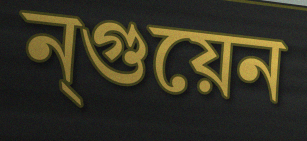
ন্গুয়েন